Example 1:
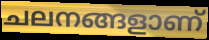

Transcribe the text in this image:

ചലനങ്ങളാണ്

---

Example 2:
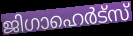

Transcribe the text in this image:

ജിഗാഹെർട്സ്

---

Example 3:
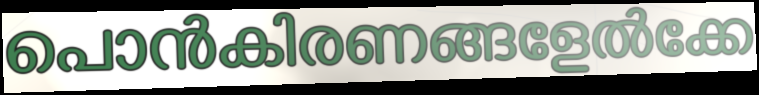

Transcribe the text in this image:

പൊൻകിരണങ്ങളേൽക്കേ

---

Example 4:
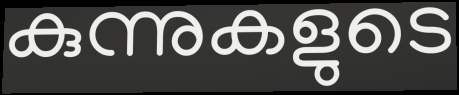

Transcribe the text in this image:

കുന്നുകളുടെ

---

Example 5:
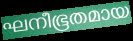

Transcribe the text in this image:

ഘനീഭൂതമായ